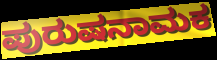
ಪುರುಷನಾಮಕ